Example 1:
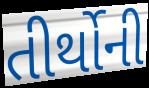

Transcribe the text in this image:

તીર્થોની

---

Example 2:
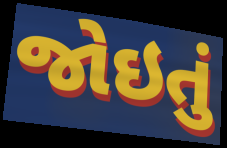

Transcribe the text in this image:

જોઇતું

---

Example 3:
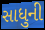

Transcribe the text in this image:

સાધુની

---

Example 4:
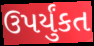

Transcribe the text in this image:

ઉપર્યુંકત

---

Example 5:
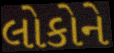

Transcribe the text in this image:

લોકોને